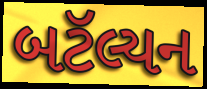
બટૅલ્યન